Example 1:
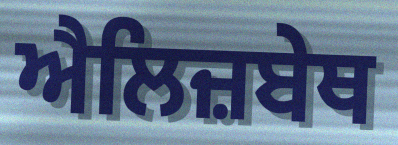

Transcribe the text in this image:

ਐਲਿਜ਼ਬੇਥ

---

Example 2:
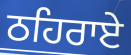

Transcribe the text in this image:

ਠਹਿਰਾਏ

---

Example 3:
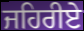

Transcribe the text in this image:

ਜਹਿਰੀਏ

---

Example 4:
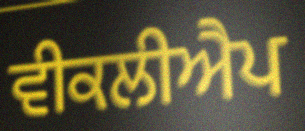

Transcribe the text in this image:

ਵੀਕਲੀਐਪ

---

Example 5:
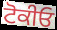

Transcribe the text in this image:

ਟੋਕੀਓ